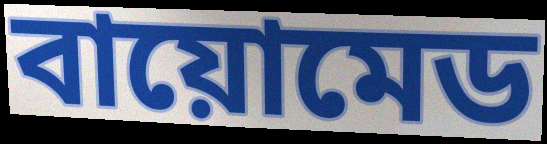
বায়োমেড